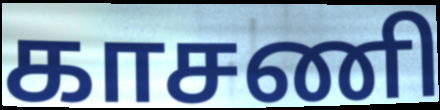
காசணி